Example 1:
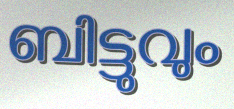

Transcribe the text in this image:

ബിട്ടുവും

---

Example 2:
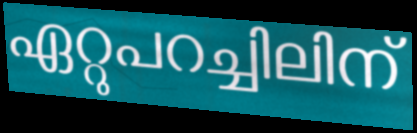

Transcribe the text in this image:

ഏറ്റുപറച്ചിലിന്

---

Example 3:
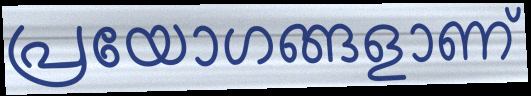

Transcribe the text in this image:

പ്രയോഗങ്ങളാണ്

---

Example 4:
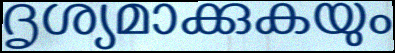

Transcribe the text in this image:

ദൃശ്യമാക്കുകയും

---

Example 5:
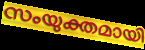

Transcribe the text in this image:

സംയുക്തമായി